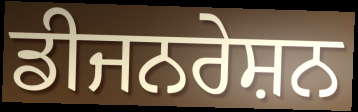
ਡੀਜਨਰੇਸ਼ਨ